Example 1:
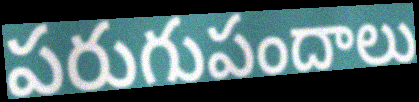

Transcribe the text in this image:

పరుగుపందాలు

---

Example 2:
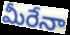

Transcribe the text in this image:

మీరేనా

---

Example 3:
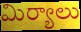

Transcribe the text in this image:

మిర్యాలు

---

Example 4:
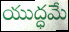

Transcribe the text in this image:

యుద్ధమే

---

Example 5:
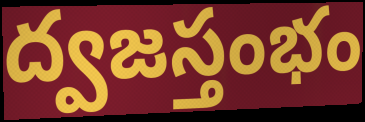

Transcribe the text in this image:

ద్వజస్తంభం